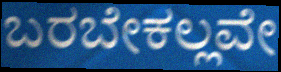
ಬರಬೇಕಲ್ಲವೇ